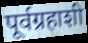
पूर्वग्रहाशी